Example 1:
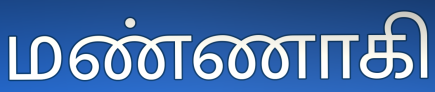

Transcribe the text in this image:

மண்ணாகி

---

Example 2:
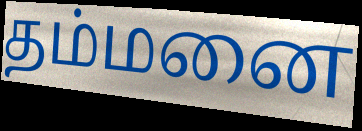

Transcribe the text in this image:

தம்மனை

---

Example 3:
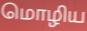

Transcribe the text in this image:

மொழிய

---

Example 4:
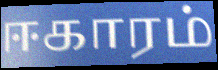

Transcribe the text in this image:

ஈகாரம்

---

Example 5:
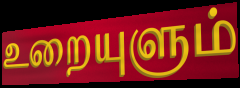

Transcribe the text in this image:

உறையுளும்